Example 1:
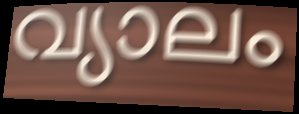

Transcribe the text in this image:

വ്യാലം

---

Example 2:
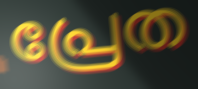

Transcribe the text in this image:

പ്രേത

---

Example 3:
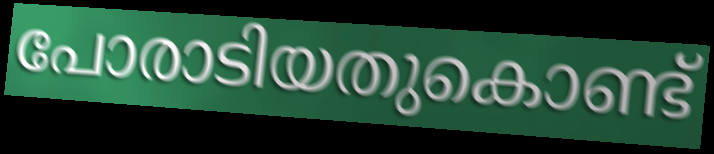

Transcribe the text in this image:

പോരാടിയതുകൊണ്ട്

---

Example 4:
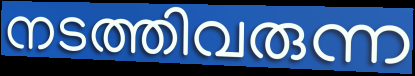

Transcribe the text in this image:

നടത്തിവരുന്ന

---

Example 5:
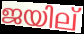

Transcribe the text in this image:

ജയില്